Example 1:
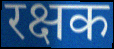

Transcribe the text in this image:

रक्षक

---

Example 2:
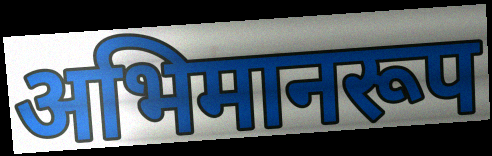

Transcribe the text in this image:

अभिमानरूप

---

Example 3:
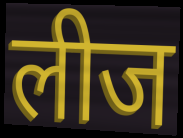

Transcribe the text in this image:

लीज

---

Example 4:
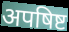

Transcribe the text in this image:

अपषिष्ट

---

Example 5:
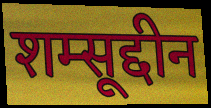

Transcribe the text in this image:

शम्सूद्दीन